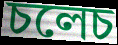
চলেচ